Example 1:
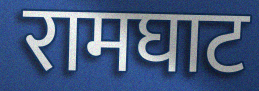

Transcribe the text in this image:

रामघाट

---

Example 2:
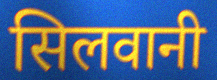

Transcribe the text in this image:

सिलवानी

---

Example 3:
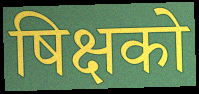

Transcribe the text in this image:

षिक्षको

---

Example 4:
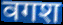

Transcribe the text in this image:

वगश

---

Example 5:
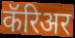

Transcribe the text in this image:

कॅरिअर